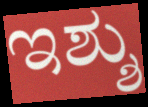
ಇಶ್ಶು